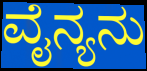
ವೈನ್ಯನು